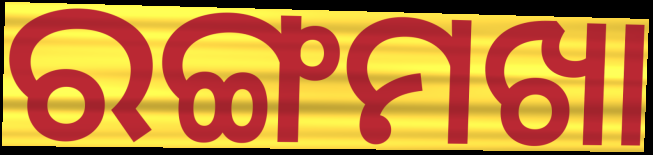
ରଙ୍ଗମଖା